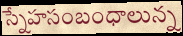
స్నేహసంబంధాలున్న